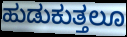
ಹುಡುಕುತ್ತಲೂ